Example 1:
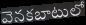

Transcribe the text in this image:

వెనకబాటులో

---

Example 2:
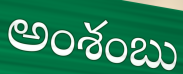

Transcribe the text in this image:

అంశంబు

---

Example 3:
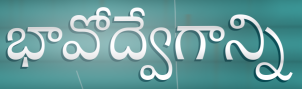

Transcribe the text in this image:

భావోద్వేగాన్ని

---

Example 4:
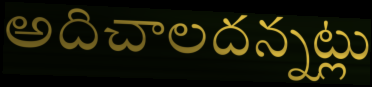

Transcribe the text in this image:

అదిచాలదన్నట్లు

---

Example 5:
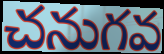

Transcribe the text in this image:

చనుగవ